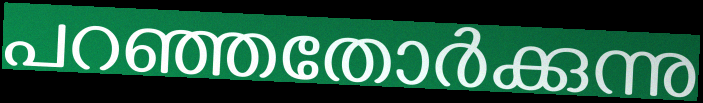
പറഞ്ഞതോർക്കുന്നു